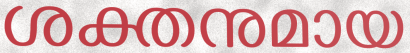
ശക്തനുമായ